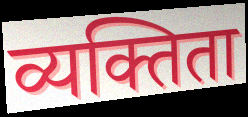
व्यक्तिता